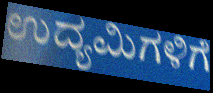
ಉದ್ಯಮಿಗಳಿಗೆ